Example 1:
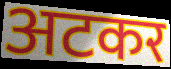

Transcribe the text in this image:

अटकर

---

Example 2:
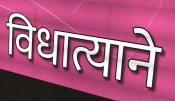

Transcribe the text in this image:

विधात्याने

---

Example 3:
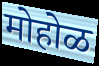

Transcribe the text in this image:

मोहोळ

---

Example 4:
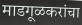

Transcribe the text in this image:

माडगूळकरांचा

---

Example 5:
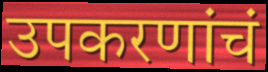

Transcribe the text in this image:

उपकरणांचं